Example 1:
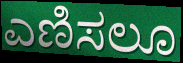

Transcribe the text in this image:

ಎಣಿಸಲೂ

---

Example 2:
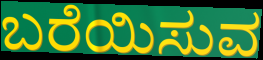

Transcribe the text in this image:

ಬರೆಯಿಸುವ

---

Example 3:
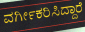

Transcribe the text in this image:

ವರ್ಗೀಕರಿಸಿದ್ದಾರೆ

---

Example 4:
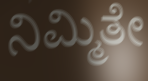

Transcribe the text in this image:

ನಿಮ್ಮಿತೇ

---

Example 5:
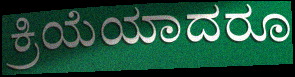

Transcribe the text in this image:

ಕ್ರಿಯೆಯಾದರೂ